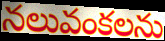
నలువంకలను